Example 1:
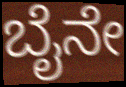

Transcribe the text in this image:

ಬೈನೇ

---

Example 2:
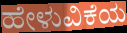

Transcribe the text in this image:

ಹೇಳುವಿಕೆಯ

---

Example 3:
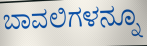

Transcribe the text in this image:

ಬಾವಲಿಗಳನ್ನೂ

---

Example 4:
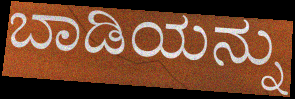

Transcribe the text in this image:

ಬಾಡಿಯನ್ನು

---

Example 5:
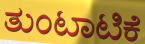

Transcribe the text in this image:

ತುಂಟಾಟಿಕೆ